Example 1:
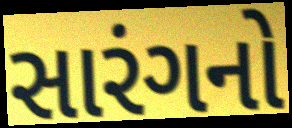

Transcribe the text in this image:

સારંગનો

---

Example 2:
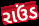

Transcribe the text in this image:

રાઉંડ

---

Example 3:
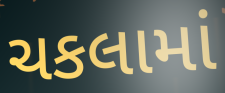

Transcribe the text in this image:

ચકલામાં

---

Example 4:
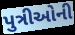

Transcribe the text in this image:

પુત્રીઓની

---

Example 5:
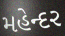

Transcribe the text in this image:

મહેન્દર